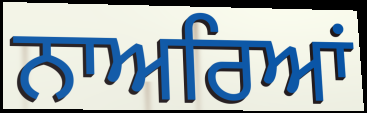
ਨਾਅਰਿਆਂ